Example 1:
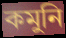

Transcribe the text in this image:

কমুনি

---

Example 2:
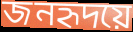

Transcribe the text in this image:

জনহৃদয়ে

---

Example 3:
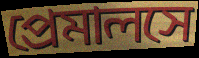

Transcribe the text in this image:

প্রেমালসে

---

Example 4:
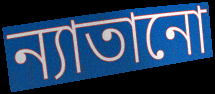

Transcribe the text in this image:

ন্যাতানো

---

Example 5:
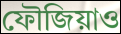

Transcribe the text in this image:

ফৌজিয়াও